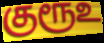
குரூஉ